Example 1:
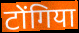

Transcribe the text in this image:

टोंगिया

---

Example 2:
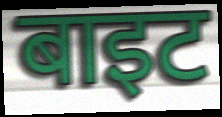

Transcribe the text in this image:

बाइट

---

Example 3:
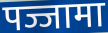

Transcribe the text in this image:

पज्जामा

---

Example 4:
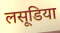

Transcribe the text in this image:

लसूडिया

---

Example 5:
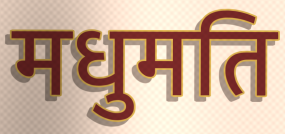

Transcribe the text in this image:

मधुमति